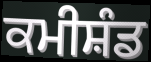
ਕਮੀਸ਼ੰਡ